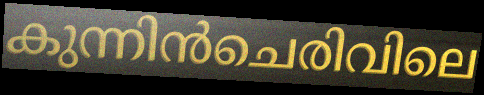
കുന്നിൻചെരിവിലെ